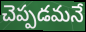
చెప్పడమనే